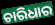
ଚାରିଧାର